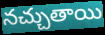
నచ్చుతాయి